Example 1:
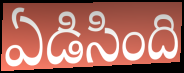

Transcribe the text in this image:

ఏడిసింది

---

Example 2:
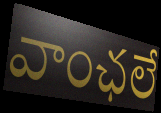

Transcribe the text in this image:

వాంఛలే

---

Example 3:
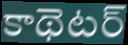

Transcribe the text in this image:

కాథెటర్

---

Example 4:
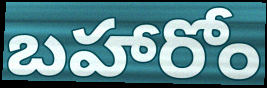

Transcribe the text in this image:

బహారోం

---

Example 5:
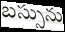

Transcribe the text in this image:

బస్సును